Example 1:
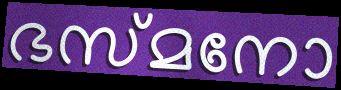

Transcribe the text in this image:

ഭസ്മനോ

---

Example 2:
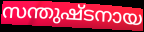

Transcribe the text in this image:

സന്തുഷ്ടനായ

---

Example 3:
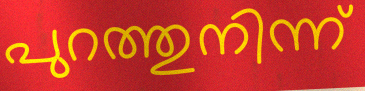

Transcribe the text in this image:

പുറത്തുനിന്ന്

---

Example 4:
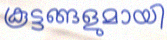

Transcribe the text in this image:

കൂട്ടങ്ങളുമായി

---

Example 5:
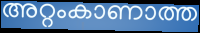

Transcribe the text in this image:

അറ്റംകാണാത്ത